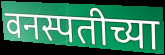
वनस्पतीच्या